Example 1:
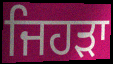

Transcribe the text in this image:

ਜਿਹੜਾ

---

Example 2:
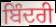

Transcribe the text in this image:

ਬਿੰਦਰੀ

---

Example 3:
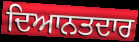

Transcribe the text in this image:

ਦਿਆਨਤਦਾਰ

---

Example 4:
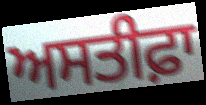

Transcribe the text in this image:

ਅਸਤੀਫ਼ਾ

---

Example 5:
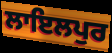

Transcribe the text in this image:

ਲਾਇਲਪੁਰ